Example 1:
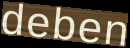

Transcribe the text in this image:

deben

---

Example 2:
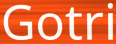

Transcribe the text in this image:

Gotri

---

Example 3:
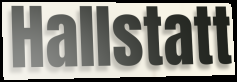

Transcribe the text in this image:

Hallstatt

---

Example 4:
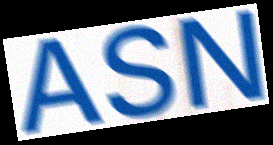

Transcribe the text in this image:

ASN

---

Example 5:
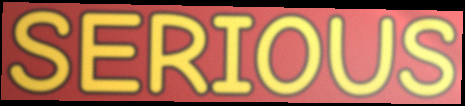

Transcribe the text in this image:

SERIOUS